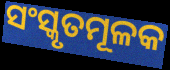
ସଂସ୍କୃତମୂଳକ